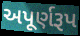
અપૂર્ણરૂપ